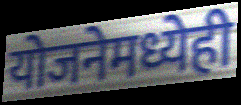
योजनेमध्येही